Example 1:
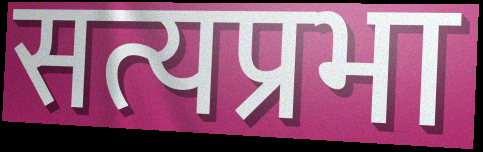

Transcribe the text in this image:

सत्यप्रभा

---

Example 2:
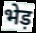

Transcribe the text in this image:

भेड़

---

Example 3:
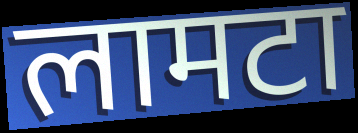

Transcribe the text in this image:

लामटा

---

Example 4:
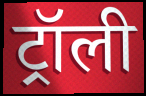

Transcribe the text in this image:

ट्रॉली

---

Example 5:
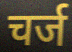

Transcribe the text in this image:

चर्ज